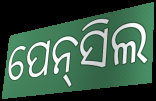
ପେନ୍‍ସିଲ